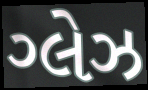
ગ્લેઝ